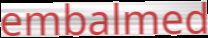
embalmed